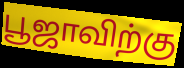
பூஜாவிற்கு